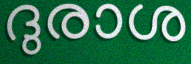
ദുരാശ